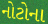
નોટોના